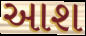
આશ